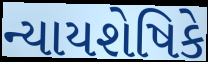
ન્યાયશેષિકે